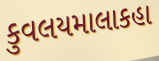
કુવલયમાલાકહા